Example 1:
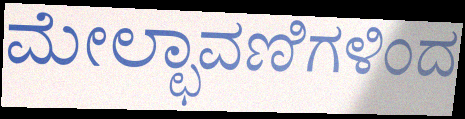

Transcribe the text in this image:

ಮೇಲ್ಛಾವಣಿಗಳಿಂದ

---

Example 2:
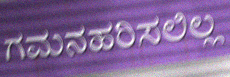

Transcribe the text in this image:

ಗಮನಹರಿಸಲಿಲ್ಲ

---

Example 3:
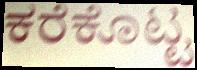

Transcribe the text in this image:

ಕರೆಕೊಟ್ಟ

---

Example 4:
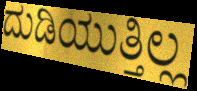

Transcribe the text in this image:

ದುಡಿಯುತ್ತಿಲ್ಲ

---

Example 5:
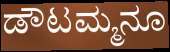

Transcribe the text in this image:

ಡೌಟಮ್ಮನೂ